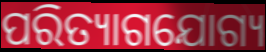
ପରିତ୍ୟାଗଯୋଗ୍ୟ